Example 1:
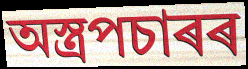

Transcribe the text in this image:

অস্ত্ৰপচাৰৰ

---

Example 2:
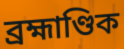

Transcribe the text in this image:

ব্ৰহ্মাণ্ডিক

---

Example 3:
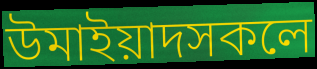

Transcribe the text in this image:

উমাইয়াদসকলে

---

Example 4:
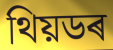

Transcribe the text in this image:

থিয়ডৰ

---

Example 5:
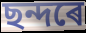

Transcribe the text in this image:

ছন্দৰে